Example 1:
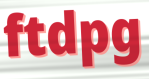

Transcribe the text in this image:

ftdpg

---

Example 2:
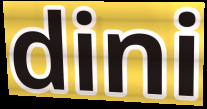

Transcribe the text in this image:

dini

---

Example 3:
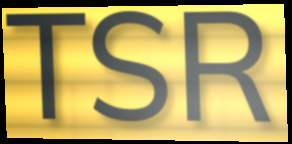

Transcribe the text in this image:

TSR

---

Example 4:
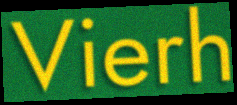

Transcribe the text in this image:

Vierh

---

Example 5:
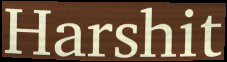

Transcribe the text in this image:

Harshit